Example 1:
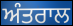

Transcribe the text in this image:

ਅੰਤਰਾਲ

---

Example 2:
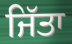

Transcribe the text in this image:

ਜਿੱਤਾ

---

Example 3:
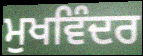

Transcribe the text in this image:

ਮੁਖਵਿੰਦਰ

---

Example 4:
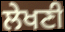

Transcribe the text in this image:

ਲੇਖਣੀ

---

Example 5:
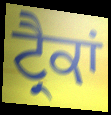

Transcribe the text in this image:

ਟ੍ਰੈਕਾਂ